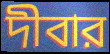
দীবার